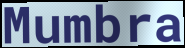
Mumbra